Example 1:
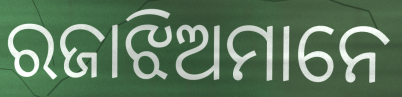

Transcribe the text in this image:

ରଜାଝିଅମାନେ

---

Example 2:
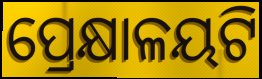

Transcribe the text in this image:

ପ୍ରେକ୍ଷାଳୟଟି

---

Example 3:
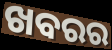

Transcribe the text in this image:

ଖବରର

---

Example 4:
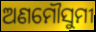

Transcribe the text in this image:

ଅଣମୌସୁମୀ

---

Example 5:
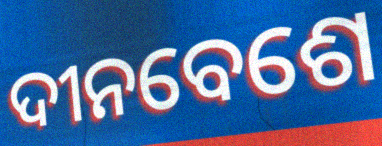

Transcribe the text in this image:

ଦୀନବେଶେ